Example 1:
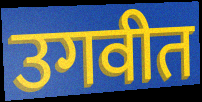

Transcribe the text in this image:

उगवीत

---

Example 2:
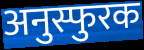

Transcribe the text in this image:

अनुस्फुरक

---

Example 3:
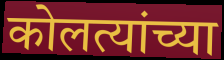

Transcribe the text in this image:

कोलत्यांच्या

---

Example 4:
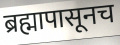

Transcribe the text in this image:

ब्रह्मापासूनच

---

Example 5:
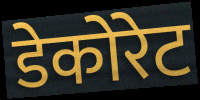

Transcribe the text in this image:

डेकोरेट